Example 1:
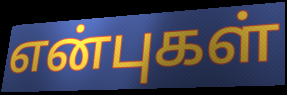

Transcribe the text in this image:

என்புகள்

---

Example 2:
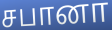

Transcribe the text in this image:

சபானா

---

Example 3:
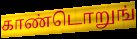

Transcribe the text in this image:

காண்டொறுங்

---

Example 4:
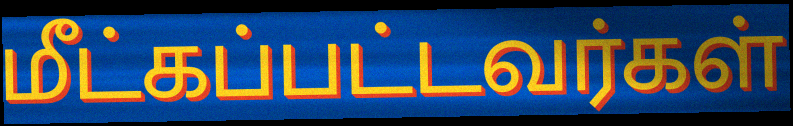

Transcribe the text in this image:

மீட்கப்பட்டவர்கள்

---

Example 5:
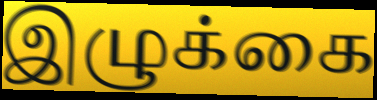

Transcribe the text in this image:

இழுக்கை